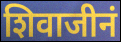
शिवाजीनं